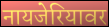
नायजेरियावर